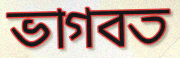
ভাগবত